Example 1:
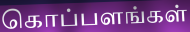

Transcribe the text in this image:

கொப்பளங்கள்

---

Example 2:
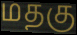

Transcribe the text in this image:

மதகு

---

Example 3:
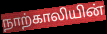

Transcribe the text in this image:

நாற்காலியின்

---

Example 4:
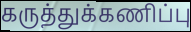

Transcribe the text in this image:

கருத்துக்கணிப்பு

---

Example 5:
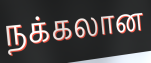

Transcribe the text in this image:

நக்கலான